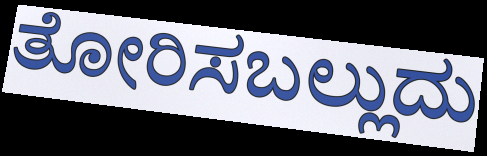
ತೋರಿಸಬಲ್ಲುದು